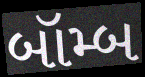
બૉમ્બ